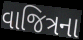
વાજિત્રના